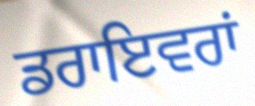
ਡਰਾਇਵਰਾਂ